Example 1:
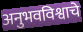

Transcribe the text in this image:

अनुभवविश्वाचे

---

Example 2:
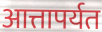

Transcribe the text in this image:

आत्तापर्यत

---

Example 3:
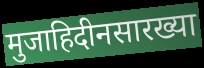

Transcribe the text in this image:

मुजाहिदीनसारख्या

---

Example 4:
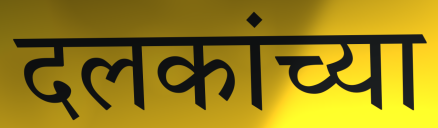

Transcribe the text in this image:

दलकांच्या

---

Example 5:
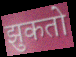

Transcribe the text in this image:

झुकतो